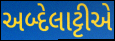
અબ્દેલાટ્ટીએ